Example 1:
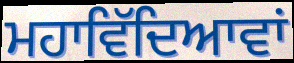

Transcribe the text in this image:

ਮਹਾਵਿੱਦਿਆਵਾਂ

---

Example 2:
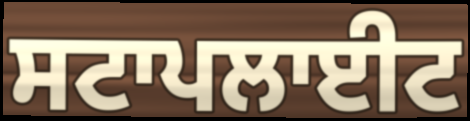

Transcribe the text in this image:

ਸਟਾਪਲਾਈਟ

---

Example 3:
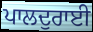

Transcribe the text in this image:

ਪਾਲਦੁਰਾਈ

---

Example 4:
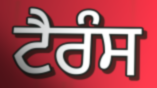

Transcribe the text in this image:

ਟੈਰੰਸ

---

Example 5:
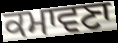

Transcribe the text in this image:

ਕਮਾਵਣਾ